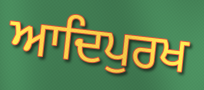
ਆਦਿਪੁਰਖ